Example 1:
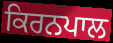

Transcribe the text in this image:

ਕਿਰਨਪਾਲ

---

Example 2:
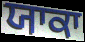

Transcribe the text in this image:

ਯਾਕਾ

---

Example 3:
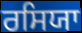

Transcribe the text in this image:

ਰਸਿਯਾ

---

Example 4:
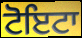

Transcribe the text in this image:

ਟੋਇਟਾ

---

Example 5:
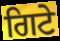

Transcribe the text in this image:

ਗਿਟੇ